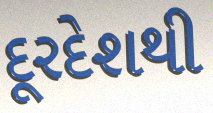
દૂરદેશથી